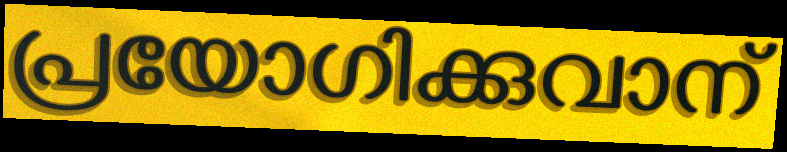
പ്രയോഗിക്കുവാന്